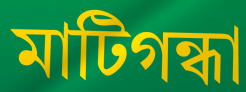
মাটিগন্ধা